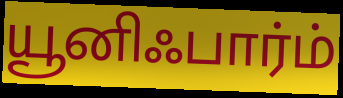
யூனிஃபார்ம்